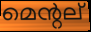
മെന്റല്